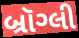
બ્રૉગ્લી